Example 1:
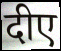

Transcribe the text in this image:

दीए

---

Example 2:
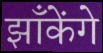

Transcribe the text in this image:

झाँकेंगे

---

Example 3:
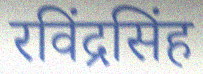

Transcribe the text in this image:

रविंद्रसिंह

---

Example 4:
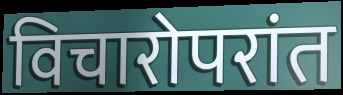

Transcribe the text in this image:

विचारोपरांत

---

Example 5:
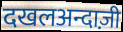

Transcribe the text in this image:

दखलअन्दाज़ी